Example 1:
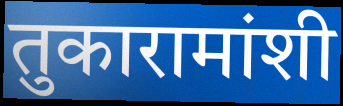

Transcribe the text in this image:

तुकारामांशी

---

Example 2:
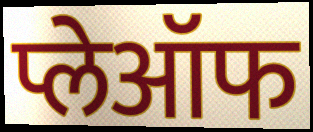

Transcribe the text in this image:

प्लेऑफ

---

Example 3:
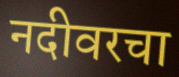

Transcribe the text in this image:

नदीवरचा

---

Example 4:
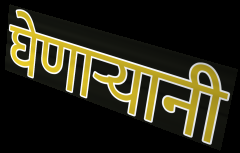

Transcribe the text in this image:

घेणाऱ्यानी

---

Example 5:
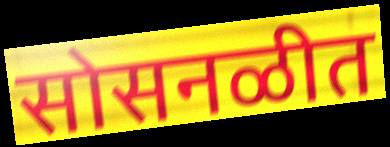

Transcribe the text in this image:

सोसनळीत